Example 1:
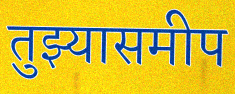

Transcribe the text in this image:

तुझ्यासमीप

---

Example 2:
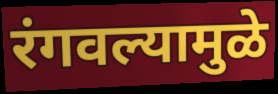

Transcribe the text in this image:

रंगवल्यामुळे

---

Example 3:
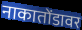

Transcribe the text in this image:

नाकातोंडावर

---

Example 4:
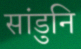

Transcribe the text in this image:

सांडुनि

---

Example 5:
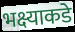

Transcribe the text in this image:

भक्ष्याकडे